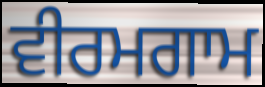
ਵੀਰਮਗਾਮ